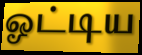
ஓட்டிய